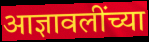
आज्ञावलींच्या